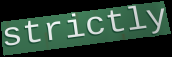
strictly